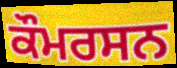
ਕੌਮਰਸਨ